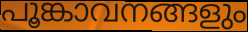
പൂങ്കാവനങ്ങളും